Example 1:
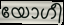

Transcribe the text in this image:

യോഗീ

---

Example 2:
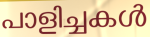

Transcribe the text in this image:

പാളിച്ചകൾ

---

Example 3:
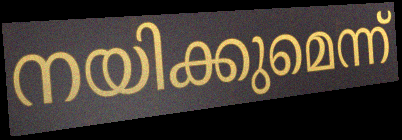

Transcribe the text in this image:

നയിക്കുമെന്ന്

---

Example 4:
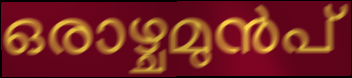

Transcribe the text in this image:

ഒരാഴ്ചമുൻപ്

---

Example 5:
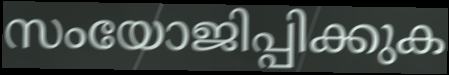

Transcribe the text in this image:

സംയോജിപ്പിക്കുക